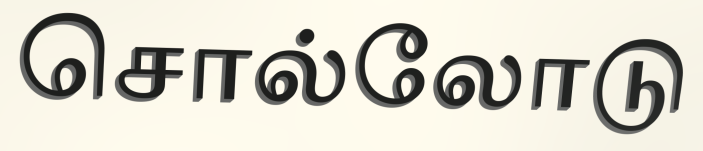
சொல்லோடு